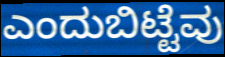
ಎಂದುಬಿಟ್ಟೆವು